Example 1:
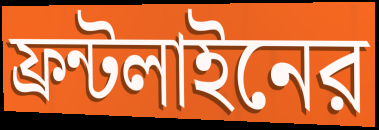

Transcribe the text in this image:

ফ্রন্টলাইনের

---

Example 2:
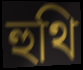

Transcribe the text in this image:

হুথি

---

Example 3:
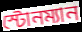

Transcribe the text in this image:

স্টোনম্যান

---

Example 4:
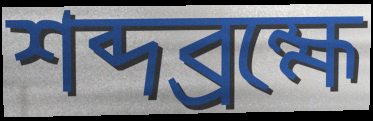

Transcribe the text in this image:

শব্দব্রহ্মে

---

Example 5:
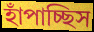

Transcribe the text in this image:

হাঁপাচ্ছিস